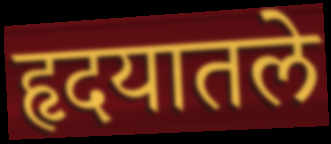
हृदयातले